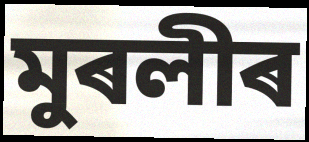
মুৰলীৰ